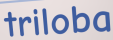
triloba